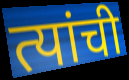
त्‍यांची